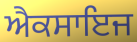
ਐਕਸਾਇਜ